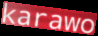
karawo